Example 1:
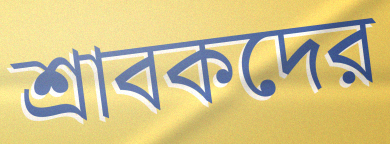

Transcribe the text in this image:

শ্রাবকদের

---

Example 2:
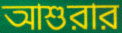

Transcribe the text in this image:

আশুরার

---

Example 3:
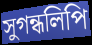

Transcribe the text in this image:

সুগন্ধলিপি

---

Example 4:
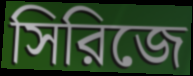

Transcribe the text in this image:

সিরিজে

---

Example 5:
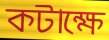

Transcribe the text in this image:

কটাক্ষে